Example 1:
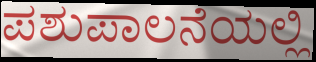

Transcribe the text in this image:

ಪಶುಪಾಲನೆಯಲ್ಲಿ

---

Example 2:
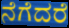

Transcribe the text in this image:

ನೆಗೆದರೆ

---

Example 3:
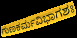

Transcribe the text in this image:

ಗುಣಕರ್ಮವಿಭಾಗಶಃ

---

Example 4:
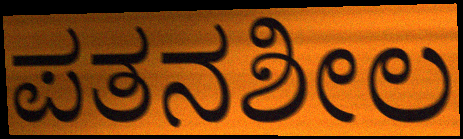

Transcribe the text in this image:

ಪತನಶೀಲ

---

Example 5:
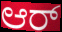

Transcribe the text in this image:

ಆರ್